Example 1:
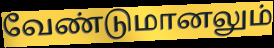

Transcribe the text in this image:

வேண்டுமானலும்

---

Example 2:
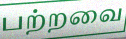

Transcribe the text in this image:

பற்றவை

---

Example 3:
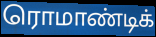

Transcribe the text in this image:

ரொமாண்டிக்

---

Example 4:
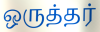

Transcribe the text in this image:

ஒருத்தர்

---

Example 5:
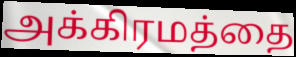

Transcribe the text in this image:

அக்கிரமத்தை